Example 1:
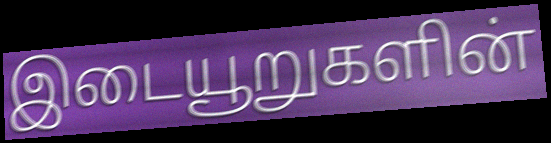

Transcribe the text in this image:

இடையூறுகளின்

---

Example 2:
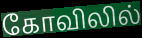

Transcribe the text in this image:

கோவிலில்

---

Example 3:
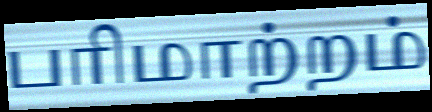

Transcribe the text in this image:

பரிமாற்றம்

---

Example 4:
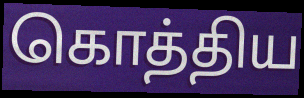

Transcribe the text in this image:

கொத்திய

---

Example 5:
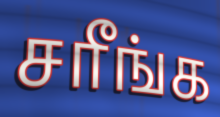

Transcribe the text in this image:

சரீங்க